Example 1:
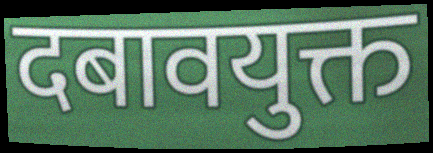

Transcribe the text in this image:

दबावयुक्त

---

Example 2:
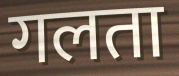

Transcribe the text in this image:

गलता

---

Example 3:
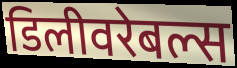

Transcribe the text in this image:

डिलीवरेबल्स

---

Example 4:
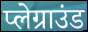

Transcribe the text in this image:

प्लेग्राउंड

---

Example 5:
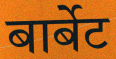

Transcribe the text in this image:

बार्बेट